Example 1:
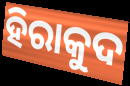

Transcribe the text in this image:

ହିରାକୁଦ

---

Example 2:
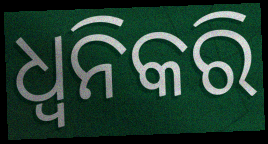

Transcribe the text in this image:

ଧ୍ୱନିକରି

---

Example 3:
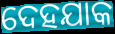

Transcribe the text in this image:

ଦେହଯାକ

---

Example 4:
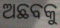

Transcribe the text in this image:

ଅଛବକୁ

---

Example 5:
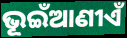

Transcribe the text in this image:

ଭୂଇଁଆଣୀଏଁ